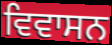
ਵਿਵਾਸਨ